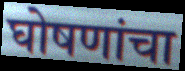
घोषणांचा